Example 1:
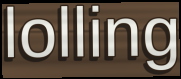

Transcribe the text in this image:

lolling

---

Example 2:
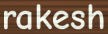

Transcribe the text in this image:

rakesh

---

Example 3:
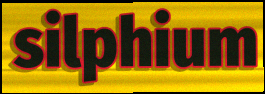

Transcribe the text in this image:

silphium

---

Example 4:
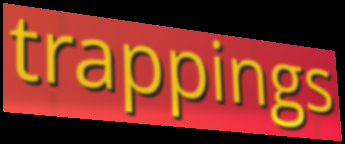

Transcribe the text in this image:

trappings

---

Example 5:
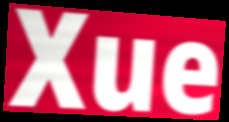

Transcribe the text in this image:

Xue